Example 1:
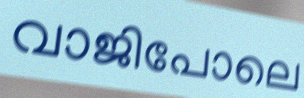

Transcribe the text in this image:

വാജിപോലെ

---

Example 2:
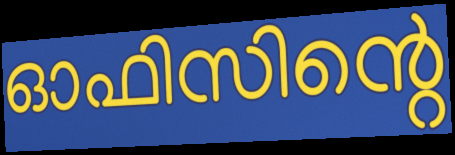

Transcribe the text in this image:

ഓഫിസിന്റെ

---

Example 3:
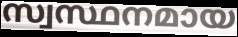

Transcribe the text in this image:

സ്വസ്ഥനമായ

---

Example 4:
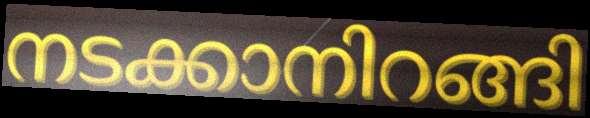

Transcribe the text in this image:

നടക്കാനിറങ്ങി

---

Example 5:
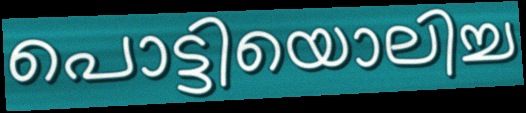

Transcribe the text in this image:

പൊട്ടിയൊലിച്ച